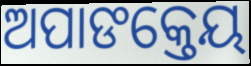
ଅପାଙକ୍ତେୟ